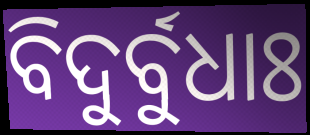
ବିଦୁର୍ବୁଧାଃ